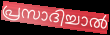
പ്രസാദിച്ചാൽ